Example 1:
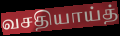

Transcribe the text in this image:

வசதியாய்த்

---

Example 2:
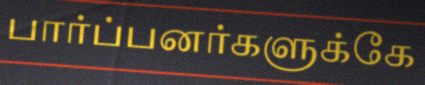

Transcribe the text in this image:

பார்ப்பனர்களுக்கே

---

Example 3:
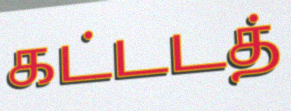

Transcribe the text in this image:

கட்டடத்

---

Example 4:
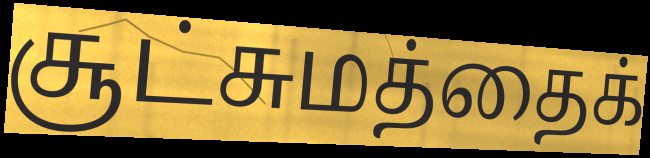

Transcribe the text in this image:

சூட்சுமத்தைக்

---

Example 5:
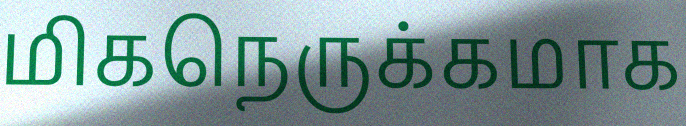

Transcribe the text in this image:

மிகநெருக்கமாக